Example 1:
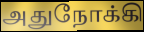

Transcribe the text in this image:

அதுநோக்கி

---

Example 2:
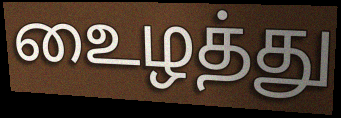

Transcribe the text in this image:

உைழத்து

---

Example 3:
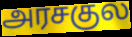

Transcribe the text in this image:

அரசகுல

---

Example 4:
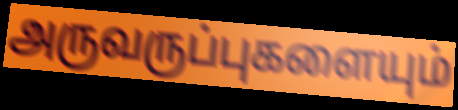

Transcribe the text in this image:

அருவருப்புகளையும்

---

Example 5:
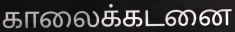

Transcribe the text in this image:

காலைக்கடனை